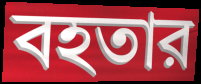
বহতার